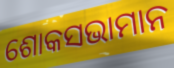
ଶୋକସଭାମାନ